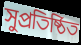
সুপ্ৰতিষ্ঠিত